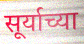
सूर्याच्या